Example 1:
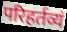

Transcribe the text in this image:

परिहर्तव्यं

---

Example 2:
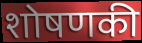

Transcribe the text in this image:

शोषणकी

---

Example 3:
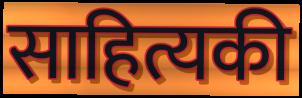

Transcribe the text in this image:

साहित्यकी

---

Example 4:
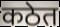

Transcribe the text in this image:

कठेत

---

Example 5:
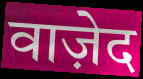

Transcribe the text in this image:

वाज़ेद